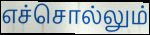
எச்சொல்லும்